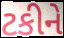
ટકીને